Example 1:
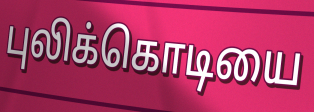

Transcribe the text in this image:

புலிக்கொடியை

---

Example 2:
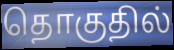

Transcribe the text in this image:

தொகுதில்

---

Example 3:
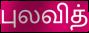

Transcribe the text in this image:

புலவித்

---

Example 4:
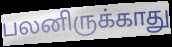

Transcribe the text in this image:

பலனிருக்காது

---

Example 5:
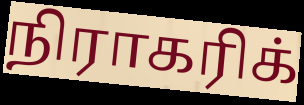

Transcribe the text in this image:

நிராகரிக்